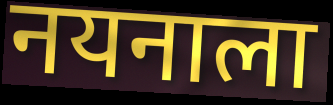
नयनाला